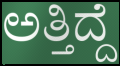
ಅತ್ತಿದ್ದೆ